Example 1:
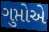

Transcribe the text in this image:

ગુપ્તોએ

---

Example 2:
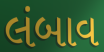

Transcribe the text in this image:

લંબાવ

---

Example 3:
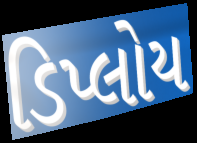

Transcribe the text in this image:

ડિપ્લોય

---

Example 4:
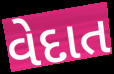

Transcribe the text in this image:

વેદાત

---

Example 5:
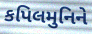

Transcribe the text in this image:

કપિલમુનિને